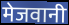
मेजवानी